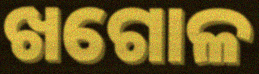
ଖଗୋଳ